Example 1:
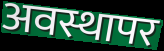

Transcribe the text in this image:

अवस्थापर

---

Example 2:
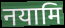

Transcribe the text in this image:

नयामि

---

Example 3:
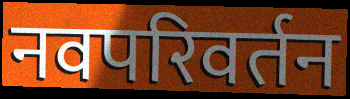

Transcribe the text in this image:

नवपरिवर्तन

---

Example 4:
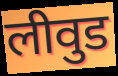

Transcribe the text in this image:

लीवुड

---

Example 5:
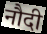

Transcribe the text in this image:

नौदी